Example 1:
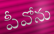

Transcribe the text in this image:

పీవోను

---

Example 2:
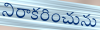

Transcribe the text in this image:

నిరాకరించును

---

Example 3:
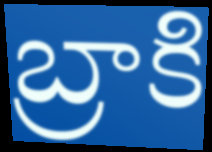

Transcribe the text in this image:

బ్రాకి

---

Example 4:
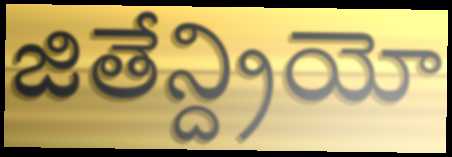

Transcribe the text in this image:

జితేన్ద్రియో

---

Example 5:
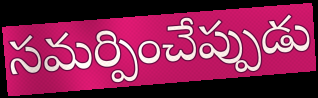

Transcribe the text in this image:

సమర్పించేప్పుడు